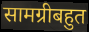
सामग्रीबहुत